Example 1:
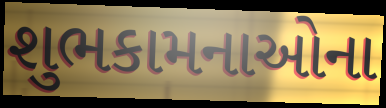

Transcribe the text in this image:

શુભકામનાઓના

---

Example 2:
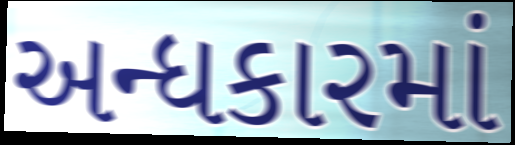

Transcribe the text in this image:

અન્ધકારમાં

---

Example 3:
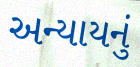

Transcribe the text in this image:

અન્યાયનું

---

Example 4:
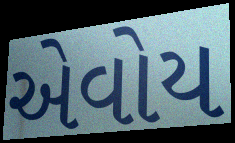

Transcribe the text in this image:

એવોય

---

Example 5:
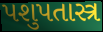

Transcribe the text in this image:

પશુપતાસ્ત્ર